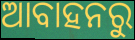
ଆବାହନରୁ